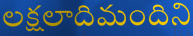
లక్షలాదిమందిని